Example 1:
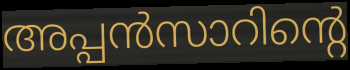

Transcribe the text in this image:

അപ്പൻസാറിന്റെ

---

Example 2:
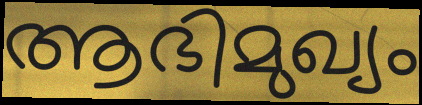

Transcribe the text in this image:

ആഭിമുഖ്യം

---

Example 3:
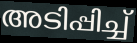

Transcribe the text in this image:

അടിപ്പിച്ച്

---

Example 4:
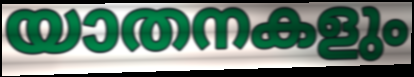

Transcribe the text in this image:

യാതനകളും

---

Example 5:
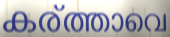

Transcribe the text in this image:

കര്ത്താവെ